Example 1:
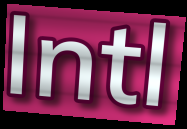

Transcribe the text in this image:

Intl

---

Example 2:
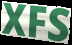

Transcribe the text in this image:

XFS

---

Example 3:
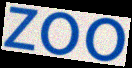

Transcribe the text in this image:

zoo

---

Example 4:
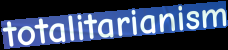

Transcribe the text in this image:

totalitarianism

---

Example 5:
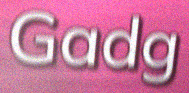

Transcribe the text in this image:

Gadg